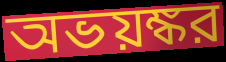
অভয়ঙ্কর